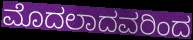
ಮೊದಲಾದವರಿಂದ